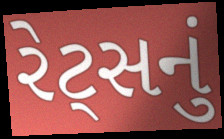
રેટ્સનું